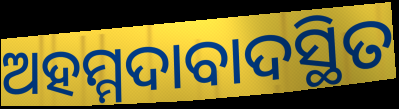
ଅହମ୍ମଦାବାଦସ୍ଥିତ